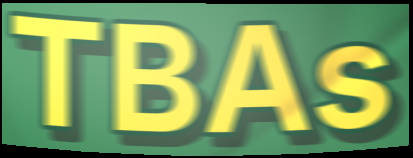
TBAs